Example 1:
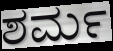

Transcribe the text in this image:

ಶರ್ಮ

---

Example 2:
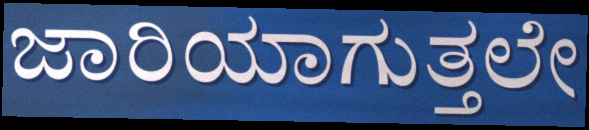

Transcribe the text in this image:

ಜಾರಿಯಾಗುತ್ತಲೇ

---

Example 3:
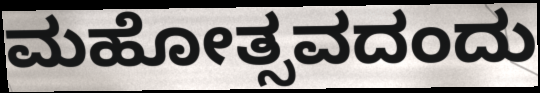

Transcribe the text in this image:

ಮಹೋತ್ಸವದಂದು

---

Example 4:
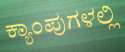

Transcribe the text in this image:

ಕ್ಯಾಂಪುಗಳಲ್ಲಿ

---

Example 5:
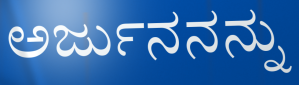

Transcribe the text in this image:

ಅರ್ಜುನನನ್ನು